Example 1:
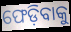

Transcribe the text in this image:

ଫେଡ଼ିବାକୁ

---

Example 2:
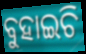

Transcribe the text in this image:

ବୁହାଇଚି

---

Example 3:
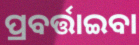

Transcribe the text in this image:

ପ୍ରବର୍ତ୍ତାଇବା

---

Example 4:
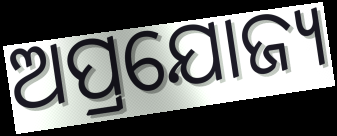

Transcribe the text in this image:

ଅପ୍ରଯୋଜ୍ୟ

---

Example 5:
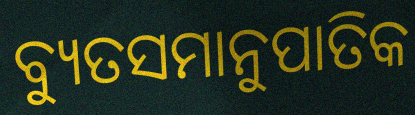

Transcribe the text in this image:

ବ୍ୟୁତସମାନୁପାତିକ